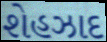
શેહઝાદ